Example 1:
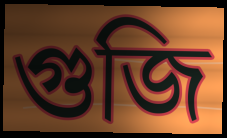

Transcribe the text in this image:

গুজি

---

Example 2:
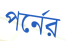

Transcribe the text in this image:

পর্নের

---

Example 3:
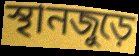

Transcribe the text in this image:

স্থানজুড়ে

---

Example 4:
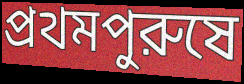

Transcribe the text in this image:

প্রথমপুরুষে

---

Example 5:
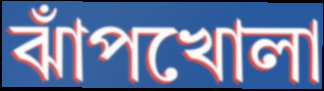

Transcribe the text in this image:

ঝাঁপখোলা